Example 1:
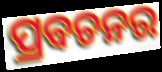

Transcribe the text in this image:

ପ୍ରବଚନର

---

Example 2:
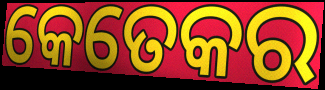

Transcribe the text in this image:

କେତେକର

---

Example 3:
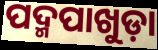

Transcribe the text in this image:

ପଦ୍ମପାଖୁଡ଼ା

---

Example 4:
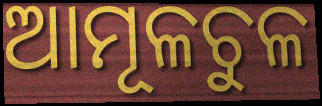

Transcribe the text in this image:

ଆମୂଳଚୁଳ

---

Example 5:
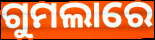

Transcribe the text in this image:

ଗୁମଲାରେ